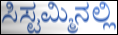
ಸಿಸ್ಟಮ್ಮಿನಲ್ಲಿ